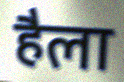
हैला